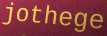
jothege